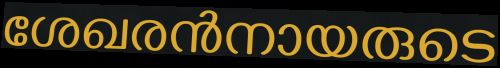
ശേഖരൻനായരുടെ